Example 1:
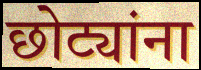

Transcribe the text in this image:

छोट्यांना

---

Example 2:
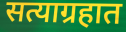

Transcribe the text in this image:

सत्याग्रहात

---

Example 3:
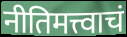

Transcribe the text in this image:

नीतिमत्त्वाचं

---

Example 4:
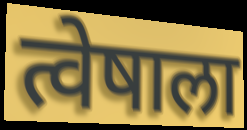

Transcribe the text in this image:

त्वेषाला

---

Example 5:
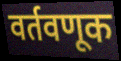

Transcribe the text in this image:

वर्तवणूक